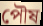
পৌষ